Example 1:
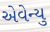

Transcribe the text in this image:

એવેન્યુ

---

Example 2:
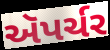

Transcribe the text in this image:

ઍપર્ચર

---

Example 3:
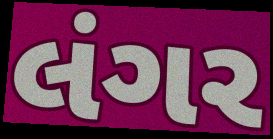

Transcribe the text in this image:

લંગર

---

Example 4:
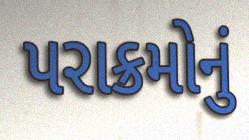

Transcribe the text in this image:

પરાક્રમોનું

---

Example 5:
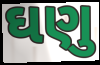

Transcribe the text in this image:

ઘણુ